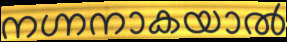
നഗ്നനാകയാൽ